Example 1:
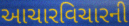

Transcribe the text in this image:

આચારવિચારની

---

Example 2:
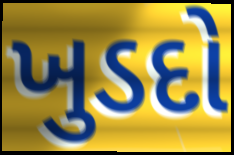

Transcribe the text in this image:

ખુડદો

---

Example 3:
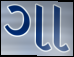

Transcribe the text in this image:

ગા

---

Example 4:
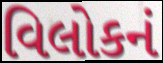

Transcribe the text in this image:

વિલોકનં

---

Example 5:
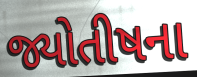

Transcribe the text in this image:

જ્યોતીષના